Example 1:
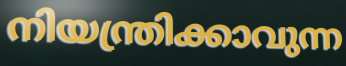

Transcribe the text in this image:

നിയന്ത്രിക്കാവുന്ന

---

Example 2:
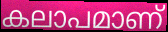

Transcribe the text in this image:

കലാപമാണ്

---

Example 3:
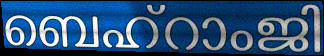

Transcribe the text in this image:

ബെഹ്റാംജി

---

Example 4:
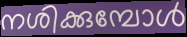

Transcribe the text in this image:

നശിക്കുമ്പോൾ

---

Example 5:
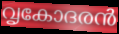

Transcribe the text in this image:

വൃകോദരൻ